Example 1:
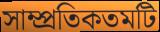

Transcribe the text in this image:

সাম্প্রতিকতমটি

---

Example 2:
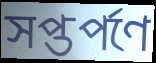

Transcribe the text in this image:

সপ্তর্পণে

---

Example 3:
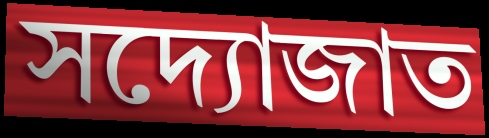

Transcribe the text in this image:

সদ্যোজাত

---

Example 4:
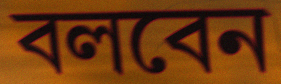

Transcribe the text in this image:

বলবেন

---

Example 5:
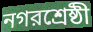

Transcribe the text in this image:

নগরশ্রেষ্ঠী